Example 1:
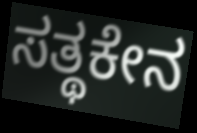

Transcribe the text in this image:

ಸತ್ಥಕೇನ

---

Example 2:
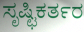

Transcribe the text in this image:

ಸೃಷ್ಟಿಕರ್ತರ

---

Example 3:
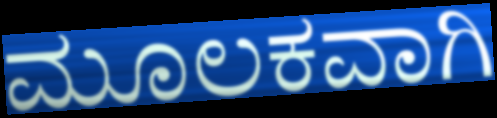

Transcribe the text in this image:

ಮೂಲಕವಾಗಿ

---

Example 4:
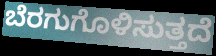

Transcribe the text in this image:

ಬೆರಗುಗೊಳಿಸುತ್ತದೆ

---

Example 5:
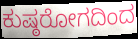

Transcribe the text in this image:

ಕುಷ್ಠರೋಗದಿಂದ